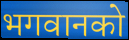
भगवानको